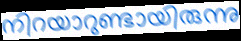
നിറയാറുണ്ടായിരുന്നു